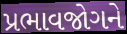
પ્રભાવજોગને